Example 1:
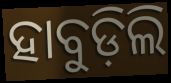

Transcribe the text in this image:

ହାବୁଡ଼ିଲି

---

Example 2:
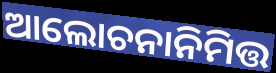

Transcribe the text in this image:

ଆଲୋଚନାନିମିତ୍ତ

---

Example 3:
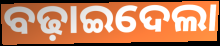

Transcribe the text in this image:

ବଢ଼ାଇଦେଲା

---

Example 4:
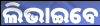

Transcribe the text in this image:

ଲିଭାଇବେ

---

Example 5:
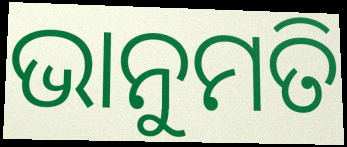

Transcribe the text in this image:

ଭାନୁମତି